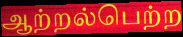
ஆற்றல்பெற்ற